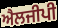
ਐਲਜੀਪੀ